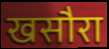
खसौरा